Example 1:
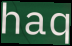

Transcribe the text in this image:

haq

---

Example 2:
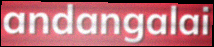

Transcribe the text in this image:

andangalai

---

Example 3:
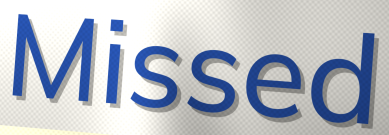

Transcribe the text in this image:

Missed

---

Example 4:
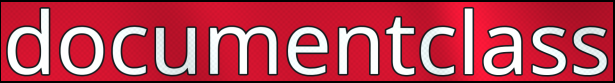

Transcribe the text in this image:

documentclass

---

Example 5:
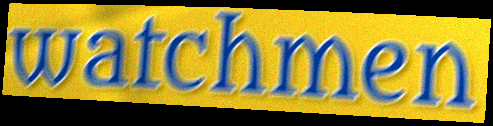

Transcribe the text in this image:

watchmen